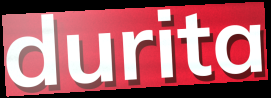
durita